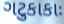
ગટુકાકાઃ